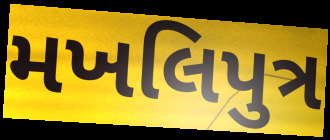
મખલિપુત્ર